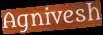
Agnivesh